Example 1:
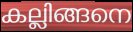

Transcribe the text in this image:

കല്ലിങ്ങനെ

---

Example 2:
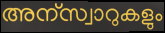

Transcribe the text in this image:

അന്സ്വാറുകളും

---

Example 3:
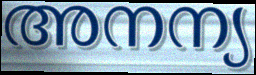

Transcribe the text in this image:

അനന്യ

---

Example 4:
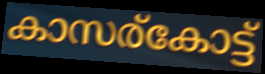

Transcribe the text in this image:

കാസര്കോട്ട്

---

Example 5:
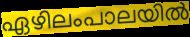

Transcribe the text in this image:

ഏഴിലംപാലയിൽ